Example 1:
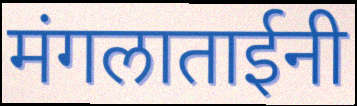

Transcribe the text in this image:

मंगलाताईनी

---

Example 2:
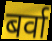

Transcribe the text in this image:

बर्वा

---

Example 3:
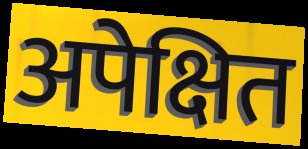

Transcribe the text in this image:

अपेक्षित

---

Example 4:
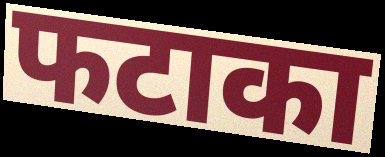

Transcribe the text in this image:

फटाका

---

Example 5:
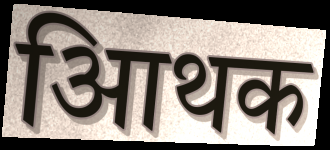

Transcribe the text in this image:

आिथक